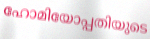
ഹോമിയോപ്പതിയുടെ